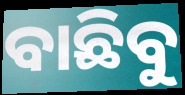
ବାଛିବୁ